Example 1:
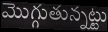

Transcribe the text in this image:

మొగ్గుతున్నట్టు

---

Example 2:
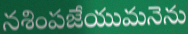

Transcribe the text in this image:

నశింపజేయుమనెను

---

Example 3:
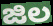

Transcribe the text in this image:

జిల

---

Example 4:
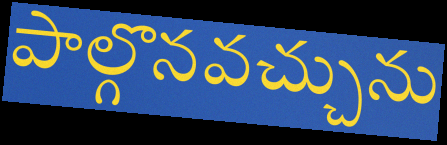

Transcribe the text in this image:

పాల్గొనవచ్చును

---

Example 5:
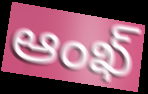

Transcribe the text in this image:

ఆంఖ్